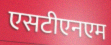
एसटीएनएम